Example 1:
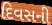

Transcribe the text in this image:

દિવસની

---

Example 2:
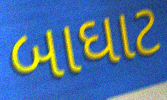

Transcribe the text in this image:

બાઘાટ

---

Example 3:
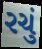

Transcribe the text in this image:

રચું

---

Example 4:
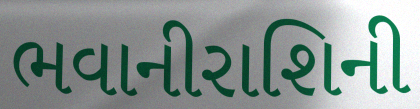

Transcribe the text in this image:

ભવાનીરાશિની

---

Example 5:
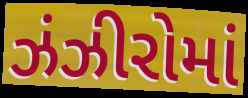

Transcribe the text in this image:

ઝંઝીરોમાં